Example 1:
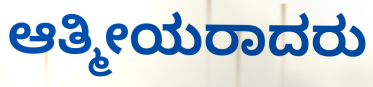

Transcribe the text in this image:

ಆತ್ಮೀಯರಾದರು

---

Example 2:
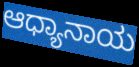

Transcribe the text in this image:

ಆಧ್ಯಾನಾಯ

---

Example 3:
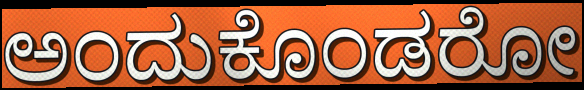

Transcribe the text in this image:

ಅಂದುಕೊಂಡರೋ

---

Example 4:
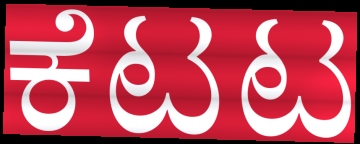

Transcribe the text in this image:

ಕೆಟಟ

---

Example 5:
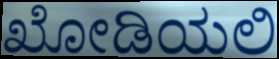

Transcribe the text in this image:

ಖೋಡಿಯಲಿ